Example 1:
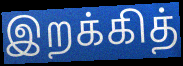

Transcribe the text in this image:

இறக்கித்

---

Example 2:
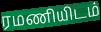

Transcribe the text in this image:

ரமணியிடம்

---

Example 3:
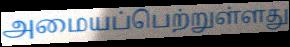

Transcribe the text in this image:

அமையப்பெற்றுள்ளது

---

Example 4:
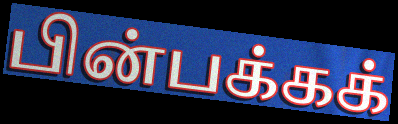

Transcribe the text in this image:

பின்பக்கக்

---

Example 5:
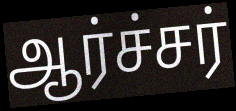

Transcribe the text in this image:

ஆர்ச்சர்